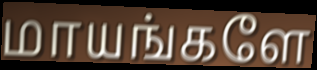
மாயங்களே